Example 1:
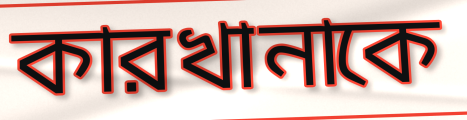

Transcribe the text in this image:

কারখানাকে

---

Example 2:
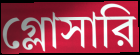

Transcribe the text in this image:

গ্লোসারি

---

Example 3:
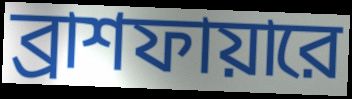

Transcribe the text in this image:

ব্রাশফায়ারে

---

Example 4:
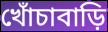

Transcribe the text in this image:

খোঁচাবাড়ি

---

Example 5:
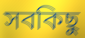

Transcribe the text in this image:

সবকিছু